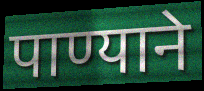
पाण्याने